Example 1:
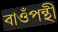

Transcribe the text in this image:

বাওঁপন্থী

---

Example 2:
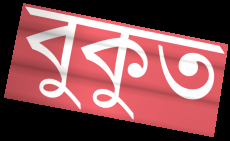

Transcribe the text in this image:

বুকুত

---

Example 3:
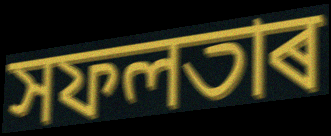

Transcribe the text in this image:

সফলতাৰ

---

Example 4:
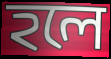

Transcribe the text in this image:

হলে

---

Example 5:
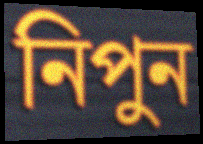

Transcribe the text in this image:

নিপুন